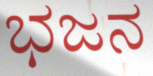
ಭಜನ